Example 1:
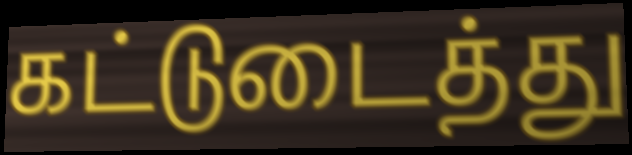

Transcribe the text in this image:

கட்டுடைத்து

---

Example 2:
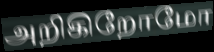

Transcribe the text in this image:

அறிகிறோமோ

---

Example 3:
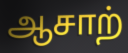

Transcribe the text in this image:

ஆசாற்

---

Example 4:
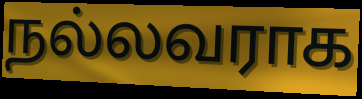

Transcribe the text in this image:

நல்லவராக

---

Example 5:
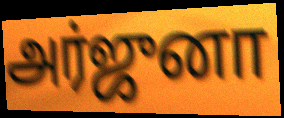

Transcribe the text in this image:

அர்ஜுனா